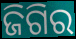
ଜିଗିର